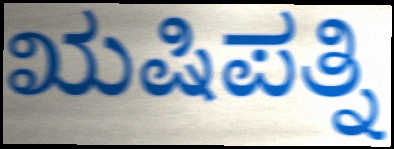
ಋಷಿಪತ್ನಿ